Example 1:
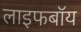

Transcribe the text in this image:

लाइफबॉय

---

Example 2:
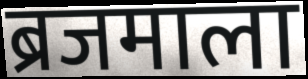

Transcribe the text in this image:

ब्रजमाला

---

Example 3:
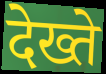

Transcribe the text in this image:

देख्ते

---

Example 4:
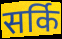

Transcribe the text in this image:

सर्कि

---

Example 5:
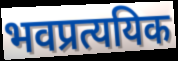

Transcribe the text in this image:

भवप्रत्ययिक